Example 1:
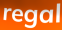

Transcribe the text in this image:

regal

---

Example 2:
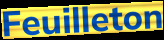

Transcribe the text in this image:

Feuilleton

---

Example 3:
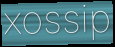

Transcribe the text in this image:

xossip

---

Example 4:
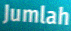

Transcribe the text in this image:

Jumlah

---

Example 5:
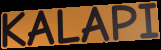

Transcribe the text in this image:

KALAPI